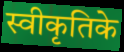
स्वीकृतिके